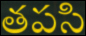
తపసి